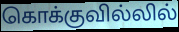
கொக்குவில்லில்